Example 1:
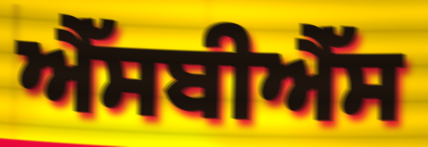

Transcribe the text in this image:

ਐੱਸਬੀਐੱਸ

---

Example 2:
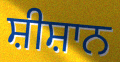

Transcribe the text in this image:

ਸ਼ੀਸ਼ਾਨ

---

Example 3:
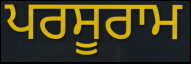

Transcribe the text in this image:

ਪਰਸੂਰਾਮ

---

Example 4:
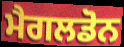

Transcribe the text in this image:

ਮੈਗਲਡੋਨ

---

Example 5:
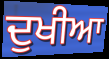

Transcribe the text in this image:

ਦੁਖੀਆ